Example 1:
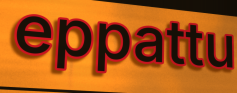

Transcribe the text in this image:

eppattu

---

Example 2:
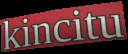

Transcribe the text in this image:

kincitu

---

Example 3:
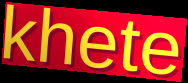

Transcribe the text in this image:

khete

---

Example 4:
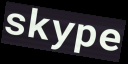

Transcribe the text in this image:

skype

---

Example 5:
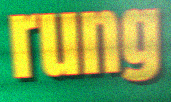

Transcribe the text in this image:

rung